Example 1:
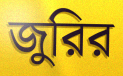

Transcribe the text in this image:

জুরির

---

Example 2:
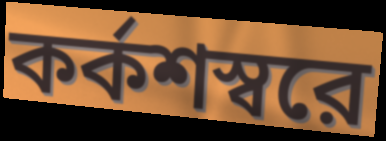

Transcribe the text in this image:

কর্কশস্বরে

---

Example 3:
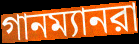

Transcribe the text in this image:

গানম্যানরা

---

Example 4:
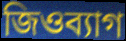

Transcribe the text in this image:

জিওব্যাগ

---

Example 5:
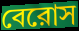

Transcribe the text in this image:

বেরোস